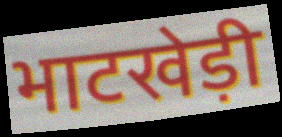
भाटखेड़ी